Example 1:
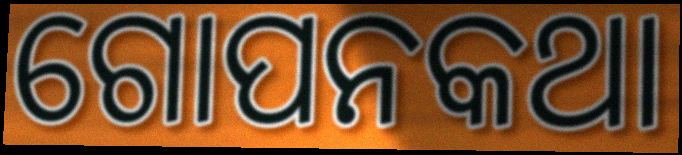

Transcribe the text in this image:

ଗୋପନକଥା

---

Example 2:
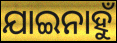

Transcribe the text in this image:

ଯାଇନାହୁଁ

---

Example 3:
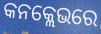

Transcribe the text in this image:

କନକ୍ଲେଭରେ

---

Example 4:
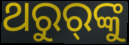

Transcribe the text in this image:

ଥରୁର୍‌ଙ୍କୁ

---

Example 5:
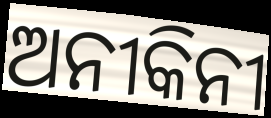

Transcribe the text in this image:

ଅନୀକିନୀ